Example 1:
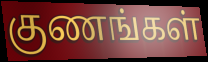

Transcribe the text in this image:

குணங்கள்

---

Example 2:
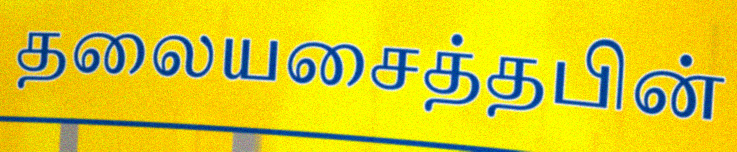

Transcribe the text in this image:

தலையசைத்தபின்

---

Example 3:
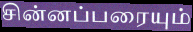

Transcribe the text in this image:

சின்னப்பரையும்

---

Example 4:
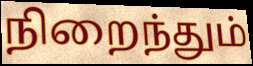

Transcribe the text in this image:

நிறைந்தும்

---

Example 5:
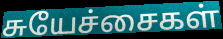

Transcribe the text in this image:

சுயேச்சைகள்